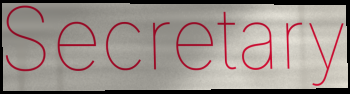
Secretary